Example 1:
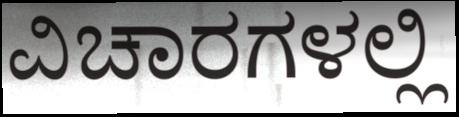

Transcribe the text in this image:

ವಿಚಾರಗಳಲ್ಲಿ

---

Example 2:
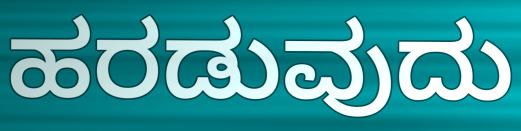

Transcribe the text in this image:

ಹರಡುವುದು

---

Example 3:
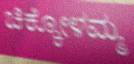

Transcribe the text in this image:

ಚಿಕ್ಕೋಳಮ್ಮ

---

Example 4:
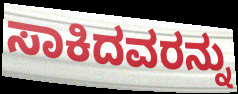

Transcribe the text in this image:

ಸಾಕಿದವರನ್ನು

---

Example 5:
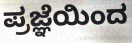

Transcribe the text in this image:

ಪ್ರಜ್ಞೆಯಿಂದ